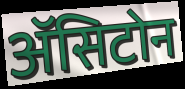
ॲसिटोन